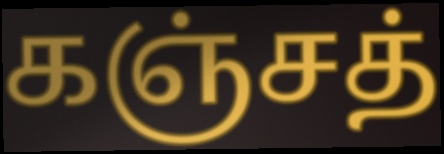
கஞ்சத்